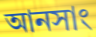
আনসাং